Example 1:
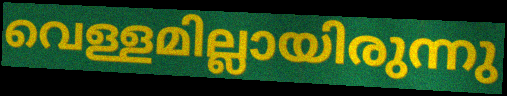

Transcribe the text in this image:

വെള്ളമില്ലായിരുന്നു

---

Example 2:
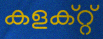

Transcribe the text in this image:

കളക്റ്റ്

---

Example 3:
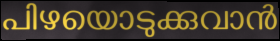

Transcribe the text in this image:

പിഴയൊടുക്കുവാൻ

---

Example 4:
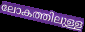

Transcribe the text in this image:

ലോകത്തിലുള്ള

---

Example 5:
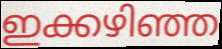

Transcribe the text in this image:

ഇക്കഴിഞ്ഞ